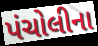
પંચોલીના